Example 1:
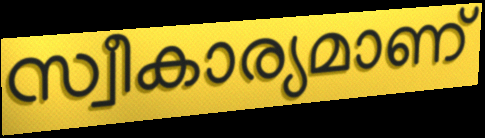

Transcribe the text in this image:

സ്വീകാര്യമാണ്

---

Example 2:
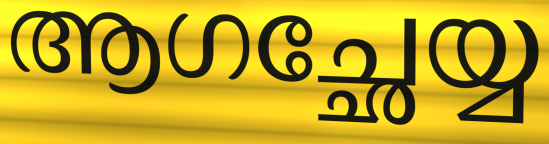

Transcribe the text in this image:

ആഗച്ഛേയ്യ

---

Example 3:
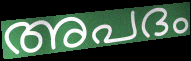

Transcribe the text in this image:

അപദം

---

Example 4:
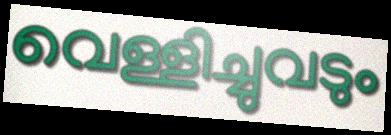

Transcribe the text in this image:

വെള്ളിച്ചുവടും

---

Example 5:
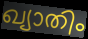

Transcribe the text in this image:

ഖ്യാതിം